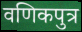
वणिकपुत्र